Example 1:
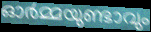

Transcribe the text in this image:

ഓർമ്മയുണ്ടാവും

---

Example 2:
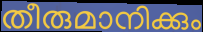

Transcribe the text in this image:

തീരുമാനിക്കും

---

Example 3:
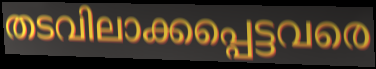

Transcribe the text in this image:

തടവിലാക്കപ്പെട്ടവരെ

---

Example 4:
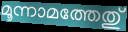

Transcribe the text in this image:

മൂന്നാമത്തേതു്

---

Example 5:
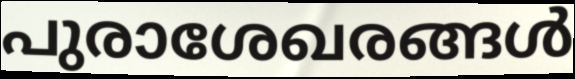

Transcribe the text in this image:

പുരാശേഖരങ്ങൾ